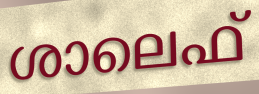
ശാലെഫ്